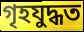
গৃহযুদ্ধত